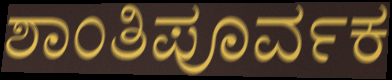
ಶಾಂತಿಪೂರ್ವಕ